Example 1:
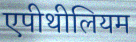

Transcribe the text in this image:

एपीथीलियम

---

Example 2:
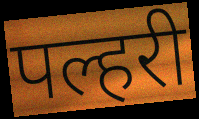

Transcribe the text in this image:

पल्हरी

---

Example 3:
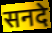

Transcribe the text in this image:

सनदे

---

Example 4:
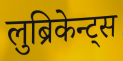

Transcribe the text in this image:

लुब्रिकेन्ट्स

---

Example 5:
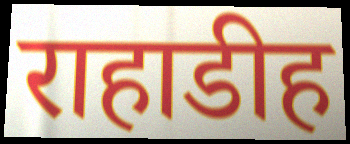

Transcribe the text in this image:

राहाडीह